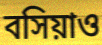
বসিয়াও